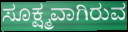
ಸೂಕ್ಷ್ಮವಾಗಿರುವ